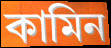
কামিন